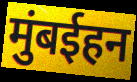
मुंबईहन